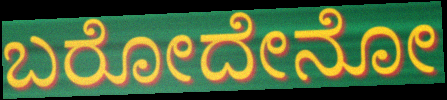
ಬರೋದೇನೋ